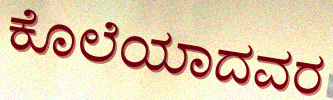
ಕೊಲೆಯಾದವರ